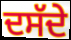
ਦਸੱਦੇ